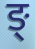
ङ्